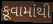
કૂવામાંથી